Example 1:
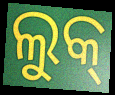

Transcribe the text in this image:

ଲୁକ୍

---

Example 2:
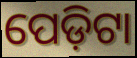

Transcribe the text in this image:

ପେଡ଼ିଟା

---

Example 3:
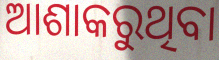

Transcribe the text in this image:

ଆଶାକରୁଥିବା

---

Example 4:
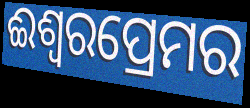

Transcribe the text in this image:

ଈଶ୍ୱରପ୍ରେମର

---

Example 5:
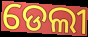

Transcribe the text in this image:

ଡେଲୀ